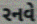
રનવે